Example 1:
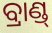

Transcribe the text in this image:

ବ୍ରାଣ୍ଡ୍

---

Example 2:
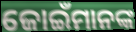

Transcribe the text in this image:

ଜୋଇଁମାନଙ୍କ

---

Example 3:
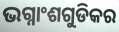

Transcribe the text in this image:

ଭଗ୍ନାଂଶଗୁଡିକର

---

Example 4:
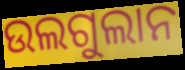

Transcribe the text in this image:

ଉଲଗୁଲାନ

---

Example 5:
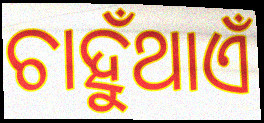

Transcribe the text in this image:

ଚାହୁଁଥାଏଁ